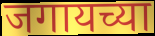
जगायच्या